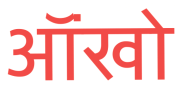
ऑंखो